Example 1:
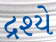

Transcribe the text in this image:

દ્રશ્યે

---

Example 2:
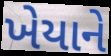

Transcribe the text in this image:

ખેયાને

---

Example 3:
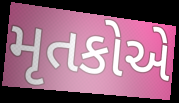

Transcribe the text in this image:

મૃતકોએ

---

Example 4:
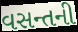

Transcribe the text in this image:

વસન્તની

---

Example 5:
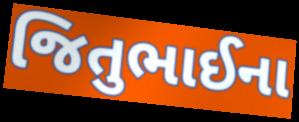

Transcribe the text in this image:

જિતુભાઈના